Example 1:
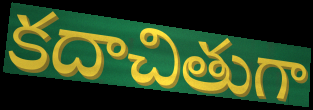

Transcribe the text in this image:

కదాచితుగా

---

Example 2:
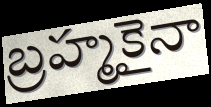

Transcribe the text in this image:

బ్రహ్మకైనా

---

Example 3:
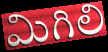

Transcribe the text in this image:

మిగిలి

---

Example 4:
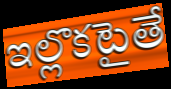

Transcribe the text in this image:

ఇల్లొకటైతే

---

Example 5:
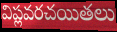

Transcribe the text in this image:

విప్లవరచయితలు